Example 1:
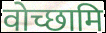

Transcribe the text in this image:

वोच्छामि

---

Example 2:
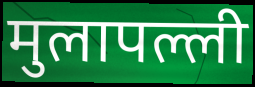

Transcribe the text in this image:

मुलापल्ली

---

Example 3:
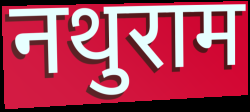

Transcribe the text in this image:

नथुराम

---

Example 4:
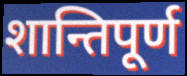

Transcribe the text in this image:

शान्तिपूर्ण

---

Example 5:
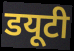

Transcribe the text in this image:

डयूटी